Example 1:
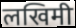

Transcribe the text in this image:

लखिमी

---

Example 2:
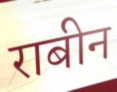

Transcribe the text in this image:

राबीन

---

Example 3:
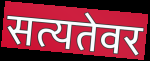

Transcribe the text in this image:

सत्यतेवर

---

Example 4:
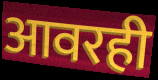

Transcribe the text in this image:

आवरही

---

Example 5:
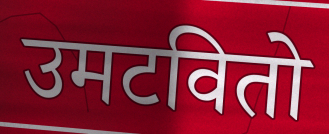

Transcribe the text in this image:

उमटवितो